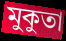
মুকুতা